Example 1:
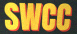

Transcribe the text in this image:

SWCC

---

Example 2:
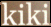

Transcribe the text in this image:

kiki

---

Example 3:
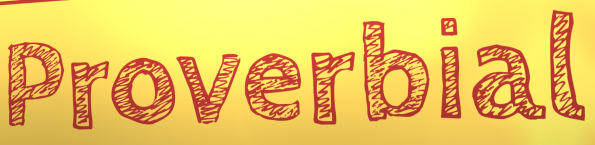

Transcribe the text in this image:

Proverbial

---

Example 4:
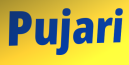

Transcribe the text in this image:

Pujari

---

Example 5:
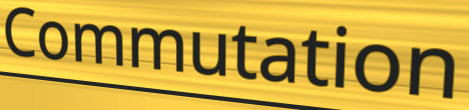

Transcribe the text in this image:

Commutation